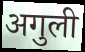
अगुली